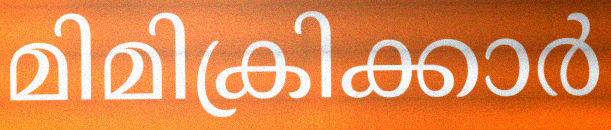
മിമിക്രിക്കാർ